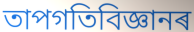
তাপগতিবিজ্ঞানৰ